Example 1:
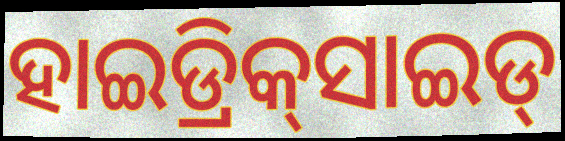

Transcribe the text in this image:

ହାଇଡ୍ରିକ୍‌ସାଇଡ୍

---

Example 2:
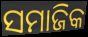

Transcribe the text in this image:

ସମାଜିକ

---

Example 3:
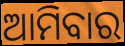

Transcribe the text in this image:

ଆମିବାର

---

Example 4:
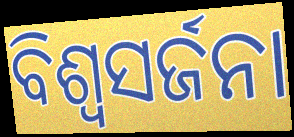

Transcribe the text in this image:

ବିଶ୍ଵସର୍ଜନା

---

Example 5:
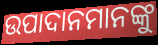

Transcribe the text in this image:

ଉପାଦାନମାନଙ୍କୁ